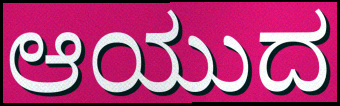
ಆಯುದ